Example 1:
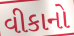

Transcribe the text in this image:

વીકાનો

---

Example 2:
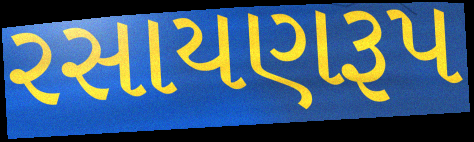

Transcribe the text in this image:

રસાયણરૂપ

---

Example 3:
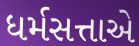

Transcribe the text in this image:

ધર્મસત્તાએ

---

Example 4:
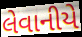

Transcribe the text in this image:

લેવાનીયે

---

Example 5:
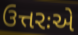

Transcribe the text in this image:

ઉત્તરઃએ